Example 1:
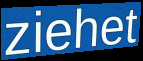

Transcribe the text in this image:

ziehet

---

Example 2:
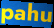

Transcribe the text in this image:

pahu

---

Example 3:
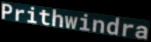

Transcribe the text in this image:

Prithwindra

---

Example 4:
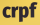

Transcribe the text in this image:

crpf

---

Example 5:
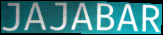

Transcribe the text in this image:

JAJABAR